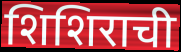
शिशिराची